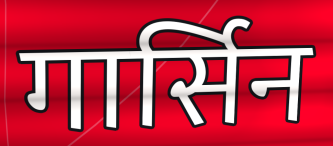
गार्सिन